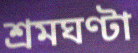
শ্রমঘণ্টা